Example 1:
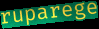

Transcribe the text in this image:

ruparege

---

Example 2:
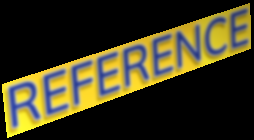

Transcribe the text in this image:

REFERENCE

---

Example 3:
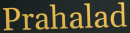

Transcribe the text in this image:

Prahalad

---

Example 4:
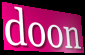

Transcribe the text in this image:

doon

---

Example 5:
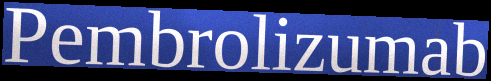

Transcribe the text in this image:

Pembrolizumab